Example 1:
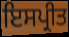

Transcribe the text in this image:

ਇਸਪ੍ਰੀਤ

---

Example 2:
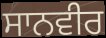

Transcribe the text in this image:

ਸਾਨਵੀਰ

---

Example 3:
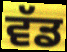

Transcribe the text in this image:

ਵੱਡ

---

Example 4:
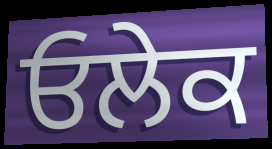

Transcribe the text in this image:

ਓਲੇਕ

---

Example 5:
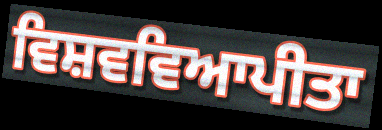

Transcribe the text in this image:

ਵਿਸ਼ਵਵਿਆਪੀਤਾ